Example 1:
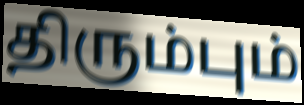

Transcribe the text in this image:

திரும்பும்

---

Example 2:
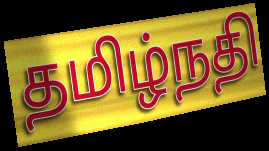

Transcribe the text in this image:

தமிழ்நதி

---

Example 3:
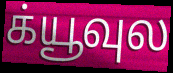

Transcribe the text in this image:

க்யூவுல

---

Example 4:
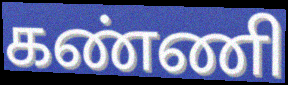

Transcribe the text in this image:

கண்ணி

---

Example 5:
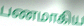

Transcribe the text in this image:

பணமாகிய